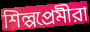
শিল্পপ্রেমীরা